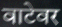
वाटेवर